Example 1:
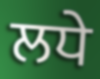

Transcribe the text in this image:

ਲਧੇ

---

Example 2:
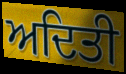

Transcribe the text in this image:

ਅਦਿਤੀ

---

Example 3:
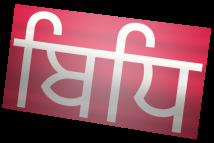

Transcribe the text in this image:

ਬਿਧਿ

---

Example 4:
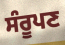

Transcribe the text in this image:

ਸੰਰੂਪਣ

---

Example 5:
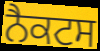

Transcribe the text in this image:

ਨੈਕਟਸ